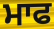
ਮਾਫ